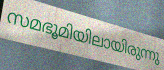
സമഭൂമിയിലായിരുന്നു